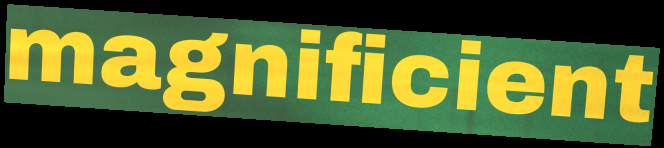
magnificient